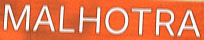
MALHOTRA